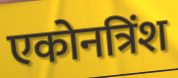
एकोनत्रिंश